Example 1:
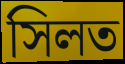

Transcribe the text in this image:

সিলত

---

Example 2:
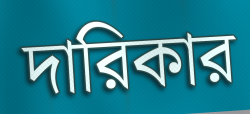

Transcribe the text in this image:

দারিকার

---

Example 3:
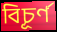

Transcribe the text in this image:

বিচূর্ণ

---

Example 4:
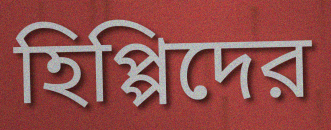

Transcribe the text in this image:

হিপ্পিদের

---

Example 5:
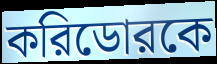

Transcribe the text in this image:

করিডোরকে